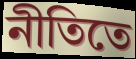
নীতিতে